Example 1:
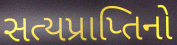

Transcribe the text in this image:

સત્યપ્રાપ્તિનો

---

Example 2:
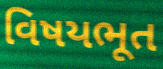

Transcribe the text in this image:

વિષયભૂત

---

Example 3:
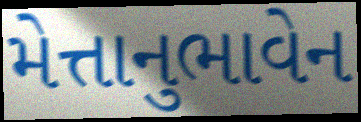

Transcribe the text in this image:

મેત્તાનુભાવેન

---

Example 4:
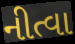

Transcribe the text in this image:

નીત્વા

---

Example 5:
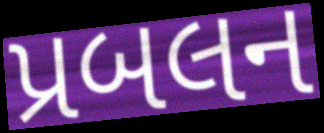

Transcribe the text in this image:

પ્રબલન